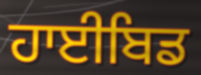
ਹਾਈਬਿਡ